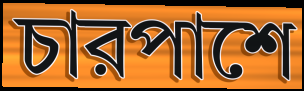
চারপাশে